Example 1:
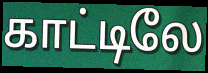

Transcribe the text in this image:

காட்டிலே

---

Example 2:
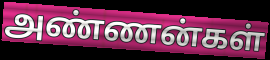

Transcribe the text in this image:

அண்ணன்கள்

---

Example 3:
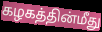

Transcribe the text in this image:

கழகத்தின்மீது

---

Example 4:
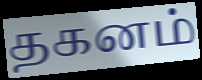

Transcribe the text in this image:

தகனம்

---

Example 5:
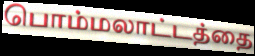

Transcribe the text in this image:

பொம்மலாட்டத்தை